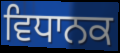
ਵਿਧਾਨਕ